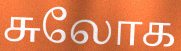
சுலோக